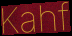
Kahf